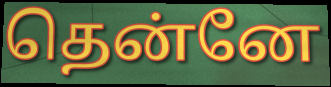
தென்னே